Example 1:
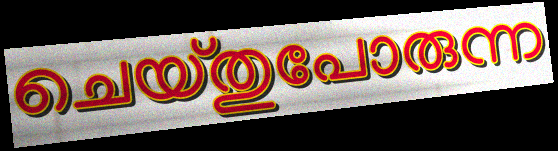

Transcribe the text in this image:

ചെയ്തുപോരുന്ന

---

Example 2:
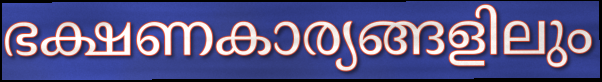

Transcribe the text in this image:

ഭക്ഷണകാര്യങ്ങളിലും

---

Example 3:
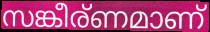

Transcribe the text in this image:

സങ്കീര്ണമാണ്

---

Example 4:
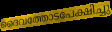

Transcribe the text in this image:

ദൈവത്തോടപേക്ഷിച്ചു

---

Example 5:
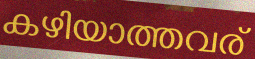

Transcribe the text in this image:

കഴിയാത്തവര്